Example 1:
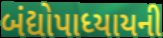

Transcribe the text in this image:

બંદ્યોપાધ્યાયની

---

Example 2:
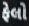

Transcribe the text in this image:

ફેલો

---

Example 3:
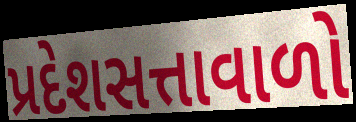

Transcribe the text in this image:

પ્રદેશસત્તાવાળો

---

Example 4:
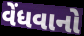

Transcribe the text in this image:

વેંધવાનો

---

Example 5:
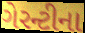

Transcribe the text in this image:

ગેરન્ટીના